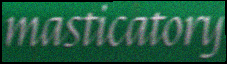
masticatory